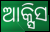
ଆକ୍ସିସ